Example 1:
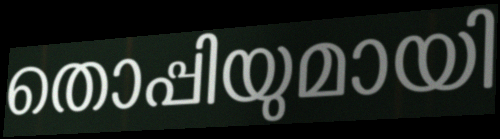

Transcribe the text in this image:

തൊപ്പിയുമായി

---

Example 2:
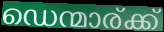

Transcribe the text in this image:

ഡെന്മാര്ക്ക്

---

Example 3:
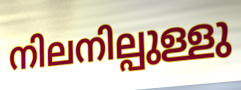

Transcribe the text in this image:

നിലനില്പുള്ളു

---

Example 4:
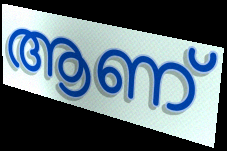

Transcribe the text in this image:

ആണ്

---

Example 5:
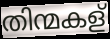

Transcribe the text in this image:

തിന്മകള്